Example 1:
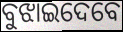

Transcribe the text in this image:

ବୁଝାଇଦେବେ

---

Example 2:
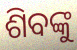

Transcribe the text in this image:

ଶିବଙ୍କୁ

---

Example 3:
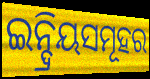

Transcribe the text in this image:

ଇନ୍ଦ୍ରିୟସମୂହର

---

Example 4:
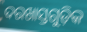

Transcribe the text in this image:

ଦରଖାସ୍ତଗୁଡ଼ିକ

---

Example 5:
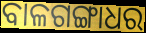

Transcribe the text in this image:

ବାଳଗଙ୍ଗାଧର